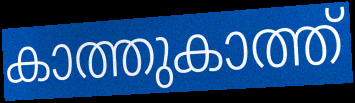
കാത്തുകാത്ത്